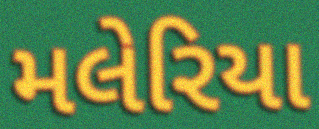
મલેરિયા